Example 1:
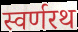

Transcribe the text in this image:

स्वर्णरथ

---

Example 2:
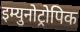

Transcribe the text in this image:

इम्युनोट्रोपिक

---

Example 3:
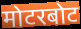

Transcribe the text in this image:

मोटरबोट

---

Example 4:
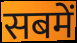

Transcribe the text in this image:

सबमें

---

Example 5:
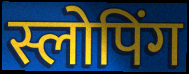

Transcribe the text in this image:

स्लोपिंग